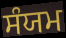
ਸੰਯਮ